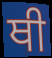
ਥੀ